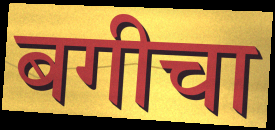
बगीचा